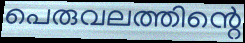
പെരുവലത്തിന്റെ